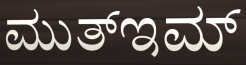
ಮುತ್ಇಮ್